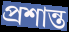
প্রশান্ত